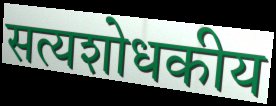
सत्यशोधकीय